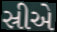
સ્રીએ